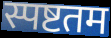
स्पष्टतम